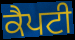
ਕੈਪਟੀ